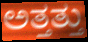
ಅತ್ತತ್ತು